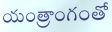
యంత్రాంగంతో